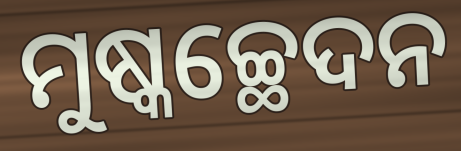
ମୁଷ୍କଚ୍ଛେଦନ